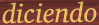
diciendo